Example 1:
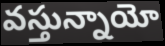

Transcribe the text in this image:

వస్తున్నాయో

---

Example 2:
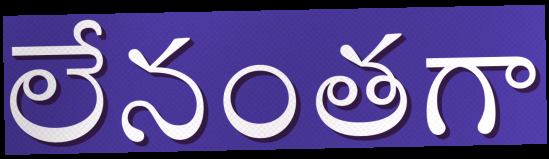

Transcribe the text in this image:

లేనంతగా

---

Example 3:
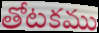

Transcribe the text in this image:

తోటకము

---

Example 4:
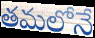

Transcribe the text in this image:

తమలోనే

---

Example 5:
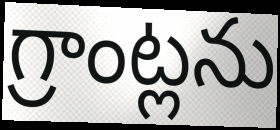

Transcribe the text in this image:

గ్రాంట్లను